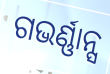
ଗଭର୍ଣ୍ଣାନ୍ସ